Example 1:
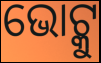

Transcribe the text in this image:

ଭୋଟ୍କୁ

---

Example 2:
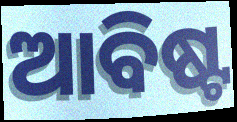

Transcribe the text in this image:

ଆବିଷ୍ଟ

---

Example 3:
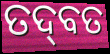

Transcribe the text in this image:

ତଦ୍‌ବତ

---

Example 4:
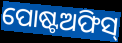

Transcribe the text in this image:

ପୋଷ୍ଟଅଫିସ୍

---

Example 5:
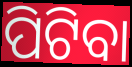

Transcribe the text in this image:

ପିଟିବା